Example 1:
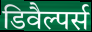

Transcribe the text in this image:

डिवैल्पर्स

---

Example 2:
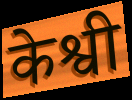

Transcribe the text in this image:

केश्वी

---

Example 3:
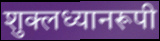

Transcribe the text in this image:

शुक्लध्यानरूपी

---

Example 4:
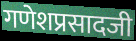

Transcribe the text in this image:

गणेशप्रसादजी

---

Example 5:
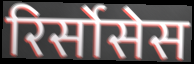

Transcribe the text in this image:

रिर्सोसेस